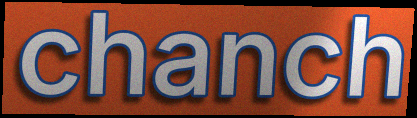
chanch